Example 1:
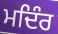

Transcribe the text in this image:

ਮਦਿੰਰ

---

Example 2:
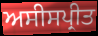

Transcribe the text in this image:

ਅਸੀਸਪ੍ਰੀਤ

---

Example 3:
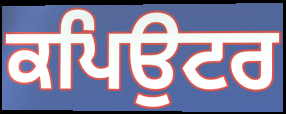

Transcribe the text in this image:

ਕਪਿਉਟਰ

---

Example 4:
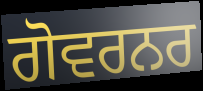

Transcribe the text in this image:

ਗੋਵਰਨਰ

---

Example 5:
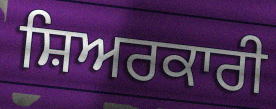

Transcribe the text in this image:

ਸ਼ਿਅਰਕਾਰੀ